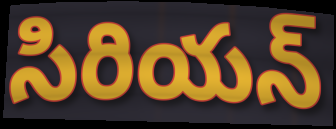
సిరియన్